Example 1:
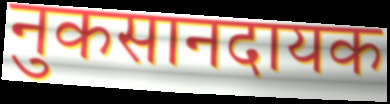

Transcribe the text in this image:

नुकसानदायक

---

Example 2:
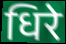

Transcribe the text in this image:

धिरे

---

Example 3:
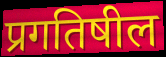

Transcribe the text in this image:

प्रगतिषील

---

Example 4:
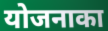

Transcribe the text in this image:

योजनाका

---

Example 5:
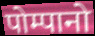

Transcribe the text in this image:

पोम्पानो